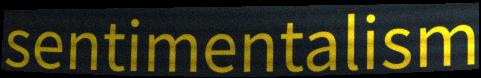
sentimentalism